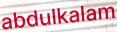
abdulkalam